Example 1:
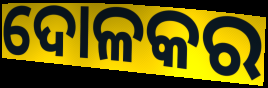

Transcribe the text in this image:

ଦୋଳକର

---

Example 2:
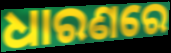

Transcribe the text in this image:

ଧାରଣରେ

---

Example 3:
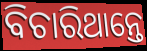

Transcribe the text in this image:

ବିଚାରିଥାନ୍ତେ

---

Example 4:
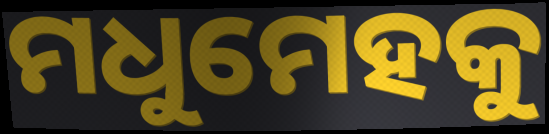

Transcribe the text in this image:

ମଧୁମେହକୁ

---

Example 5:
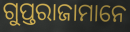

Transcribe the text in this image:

ଗୁପ୍ତରାଜାମାନେ